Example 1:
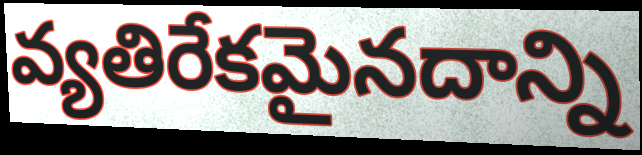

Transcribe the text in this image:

వ్యతిరేకమైనదాన్ని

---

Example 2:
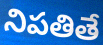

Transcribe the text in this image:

నిపతితే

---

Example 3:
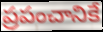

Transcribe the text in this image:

ప్రపంచానికే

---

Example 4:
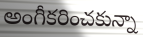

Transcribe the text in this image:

అంగీకరించకున్నా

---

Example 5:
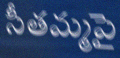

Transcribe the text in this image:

సీతమ్మపై